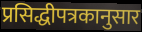
प्रसिद्धीपत्रकानुसार